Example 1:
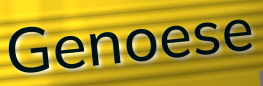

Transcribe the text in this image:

Genoese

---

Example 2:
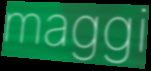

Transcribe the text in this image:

maggi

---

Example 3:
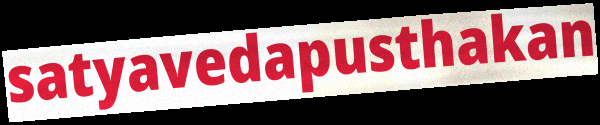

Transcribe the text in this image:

satyavedapusthakan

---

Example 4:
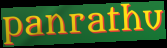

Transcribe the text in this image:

panrathu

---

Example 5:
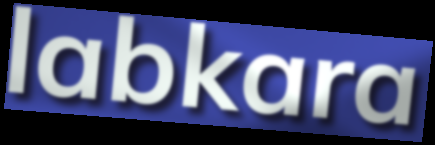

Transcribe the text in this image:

labkara